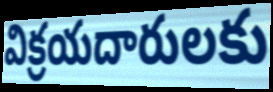
విక్రయదారులకు